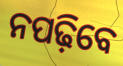
ନପଢ଼ିବେ